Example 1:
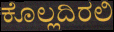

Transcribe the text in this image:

ಕೊಲ್ಲದಿರಲಿ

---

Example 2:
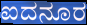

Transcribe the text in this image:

ಐದನೂರ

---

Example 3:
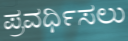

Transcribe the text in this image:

ಪ್ರವರ್ಧಿಸಲು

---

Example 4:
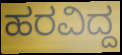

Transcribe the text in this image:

ಹರವಿದ್ದ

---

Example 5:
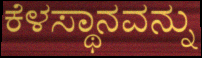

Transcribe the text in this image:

ಕೆಳಸ್ಥಾನವನ್ನು